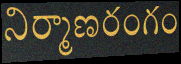
నిర్మాణరంగం